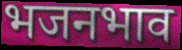
भजनभाव